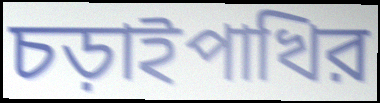
চড়াইপাখির